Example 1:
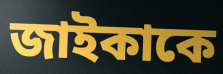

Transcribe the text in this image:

জাইকাকে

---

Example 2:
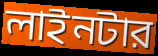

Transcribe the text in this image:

লাইনটার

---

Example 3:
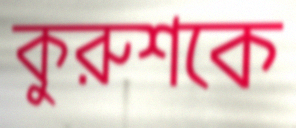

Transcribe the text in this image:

কুরুশকে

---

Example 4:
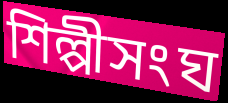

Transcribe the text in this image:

শিল্পীসংঘ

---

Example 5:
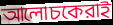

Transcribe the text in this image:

আলোচকেরাই